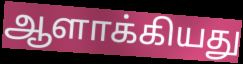
ஆளாக்கியது